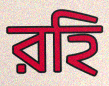
রহি